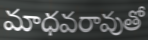
మాధవరావుతో